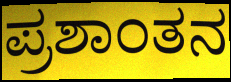
ಪ್ರಶಾಂತನ